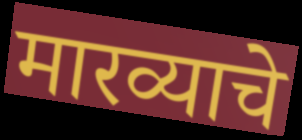
मारव्याचे